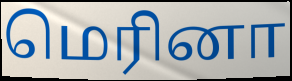
மெரினா